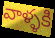
వాళ్ళకి